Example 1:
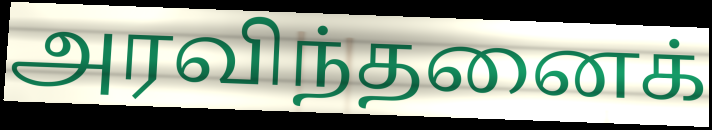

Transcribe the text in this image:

அரவிந்தனைக்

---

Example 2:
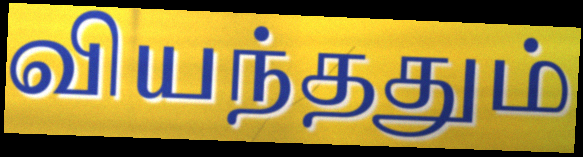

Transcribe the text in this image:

வியந்ததும்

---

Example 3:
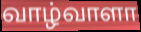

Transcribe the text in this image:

வாழ்வாளா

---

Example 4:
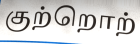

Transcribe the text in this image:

குற்றொற்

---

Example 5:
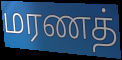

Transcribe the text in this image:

மரணத்